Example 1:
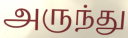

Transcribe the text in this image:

அருந்து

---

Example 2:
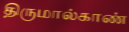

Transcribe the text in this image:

திருமால்காண்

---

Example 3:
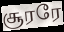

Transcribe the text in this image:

சூரரே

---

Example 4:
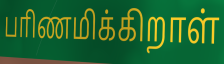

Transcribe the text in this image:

பரிணமிக்கிறாள்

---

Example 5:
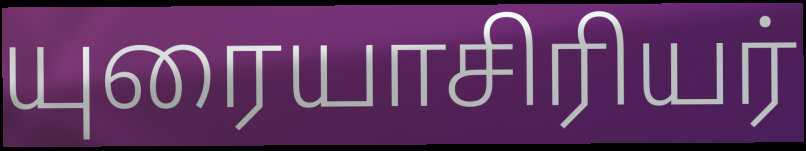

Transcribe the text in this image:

யுரையாசிரியர்